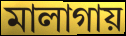
মালাগায়